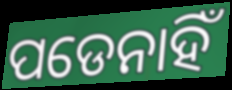
ପଡେନାହିଁ